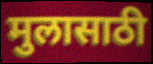
मुलासाठी